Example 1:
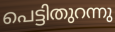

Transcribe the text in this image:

പെട്ടിതുറന്നു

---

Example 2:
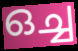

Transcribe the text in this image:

ഒച്ച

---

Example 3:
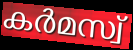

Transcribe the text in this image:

കർമസ്വ്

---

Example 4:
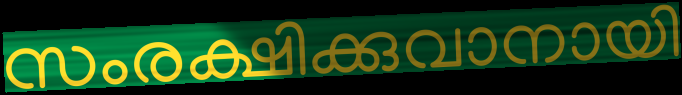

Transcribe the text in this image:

സംരക്ഷിക്കുവാനായി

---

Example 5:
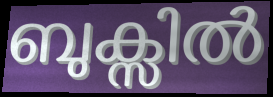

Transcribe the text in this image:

ബുക്സിൽ